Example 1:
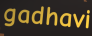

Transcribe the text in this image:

gadhavi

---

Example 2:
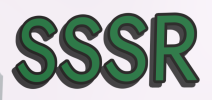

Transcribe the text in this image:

SSSR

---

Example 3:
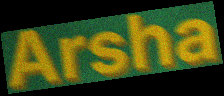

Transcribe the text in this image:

Arsha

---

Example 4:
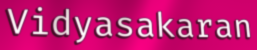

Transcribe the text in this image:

Vidyasakaran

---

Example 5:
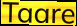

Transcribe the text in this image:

Taare